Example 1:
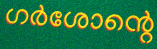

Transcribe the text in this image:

ഗർശോന്റെ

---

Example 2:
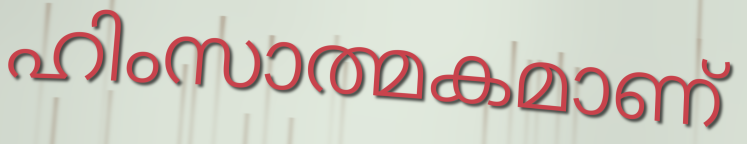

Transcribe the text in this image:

ഹിംസാത്മകമാണ്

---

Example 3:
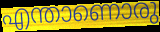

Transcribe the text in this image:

എന്താണൊരു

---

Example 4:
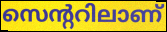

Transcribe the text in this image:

സെന്ററിലാണ്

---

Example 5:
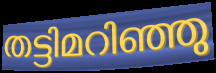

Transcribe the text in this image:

തട്ടിമറിഞ്ഞു